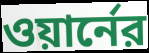
ওয়ার্নের